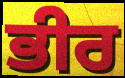
ਭੀਰ